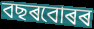
বছৰবোৰৰ